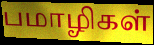
பமாழிகள்